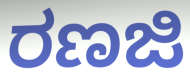
ರಣಜಿ